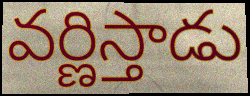
వర్ణిస్తాడు